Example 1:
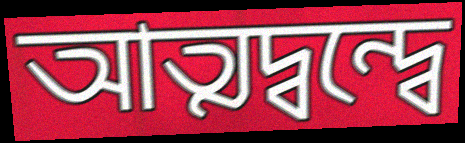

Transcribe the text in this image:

আত্মদ্বন্দ্বে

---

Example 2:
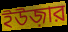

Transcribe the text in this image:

ইউজ়ার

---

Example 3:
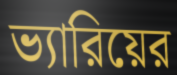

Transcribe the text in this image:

ভ্যারিয়ের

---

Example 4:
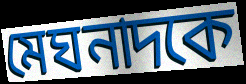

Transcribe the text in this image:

মেঘনাদকে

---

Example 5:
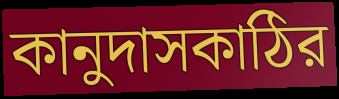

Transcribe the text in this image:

কানুদাসকাঠির